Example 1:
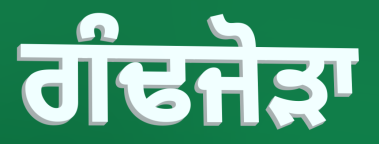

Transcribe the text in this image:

ਗੰਢਜੋੜਾ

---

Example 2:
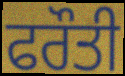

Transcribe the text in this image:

ਫਰੌਤੀ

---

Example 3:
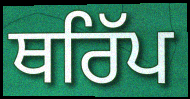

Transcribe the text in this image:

ਥਰਿੱਪ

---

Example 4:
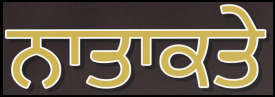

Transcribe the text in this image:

ਨਾਤਾਕਤੇ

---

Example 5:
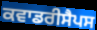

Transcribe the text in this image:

ਕਵਾਡਰੀਸੈਪਸ